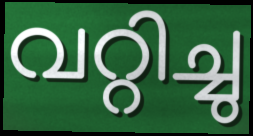
വറ്റിച്ചു